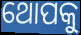
ଥୋପକୁ